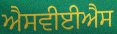
ਐਸਵੀਈਐਸ